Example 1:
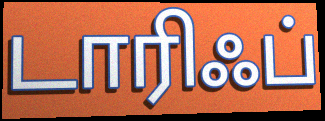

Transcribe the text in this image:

டாரிஃப்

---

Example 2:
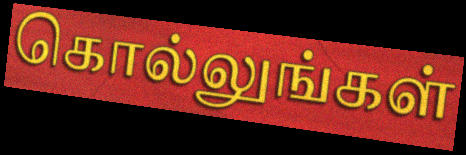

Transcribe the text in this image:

கொல்லுங்கள்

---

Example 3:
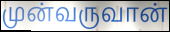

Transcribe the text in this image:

முன்வருவான்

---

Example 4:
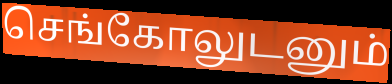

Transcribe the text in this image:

செங்கோலுடனும்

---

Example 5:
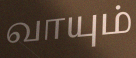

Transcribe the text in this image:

வாயும்